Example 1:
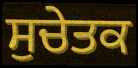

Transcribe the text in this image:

ਸੁਚੇਤਕ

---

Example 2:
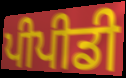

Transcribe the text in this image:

ਪੀਪੀਡੀ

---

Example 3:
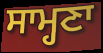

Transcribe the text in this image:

ਸਾਮ੍ਹਣਾ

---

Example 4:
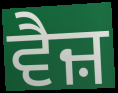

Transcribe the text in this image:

ਵੈਜ਼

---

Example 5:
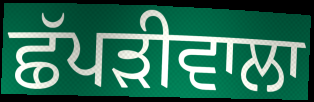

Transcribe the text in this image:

ਛੱਪੜੀਵਾਲਾ